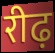
रीढ़